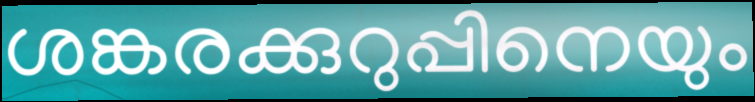
ശങ്കരക്കുറുപ്പിനെയും